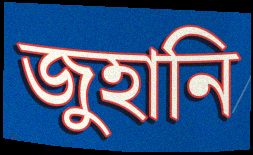
জুহানি